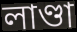
লাণ্ডা